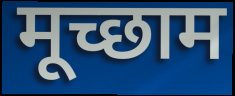
मूच्छाम